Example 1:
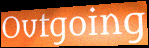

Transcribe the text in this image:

Outgoing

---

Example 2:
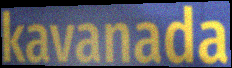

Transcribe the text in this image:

kavanada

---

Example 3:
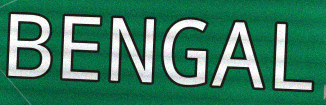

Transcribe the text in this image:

BENGAL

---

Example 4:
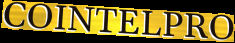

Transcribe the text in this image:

COINTELPRO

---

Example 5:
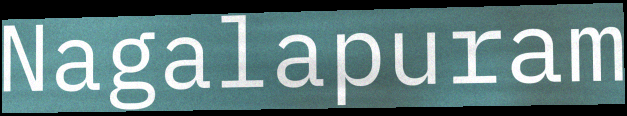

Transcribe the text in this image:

Nagalapuram